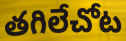
తగిలేచోట